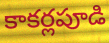
కాకర్లపూడి